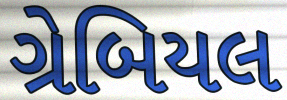
ગ્રેબિયલ